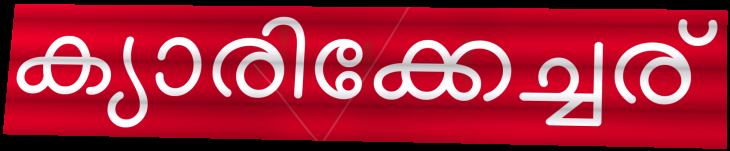
ക്യാരിക്കേച്ചര്